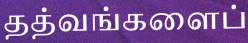
தத்வங்களைப்